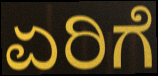
ಏರಿಗೆ